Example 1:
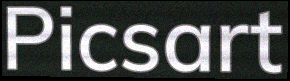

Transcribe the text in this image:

Picsart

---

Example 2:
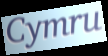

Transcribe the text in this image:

Cymru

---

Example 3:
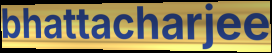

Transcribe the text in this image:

bhattacharjee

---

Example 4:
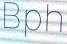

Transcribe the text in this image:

Bph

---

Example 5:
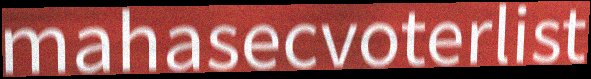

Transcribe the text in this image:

mahasecvoterlist